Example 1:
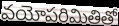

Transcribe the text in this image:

వయోపరిమితితో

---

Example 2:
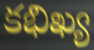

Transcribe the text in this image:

కభిఖ్య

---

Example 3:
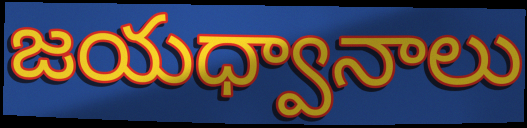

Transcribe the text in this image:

జయధ్వానాలు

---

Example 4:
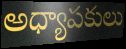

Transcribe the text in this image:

అధ్యాపకులు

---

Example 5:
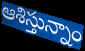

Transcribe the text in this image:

ఆశిస్తున్నాం